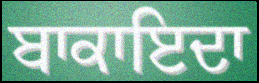
ਬਾਕਾਇਦਾ